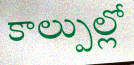
కాల్పుల్లో